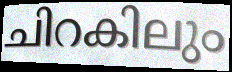
ചിറകിലും